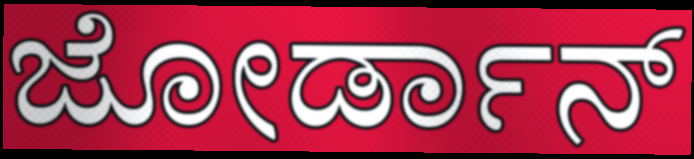
ಜೋರ್ಡಾನ್